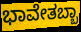
ಭಾವೇತಬ್ಬಾ